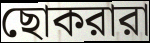
ছোকরারা